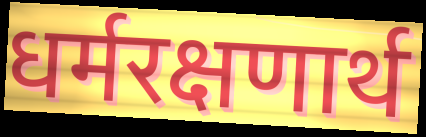
धर्मरक्षणार्थ